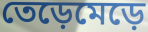
তেড়েমেড়ে